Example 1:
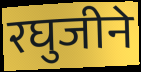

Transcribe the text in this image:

रघुजीने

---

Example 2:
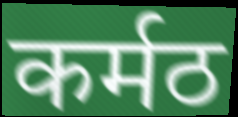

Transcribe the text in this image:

कर्मठ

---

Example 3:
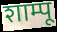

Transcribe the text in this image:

शाम्पू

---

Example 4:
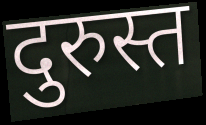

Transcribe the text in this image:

दुरुस्त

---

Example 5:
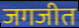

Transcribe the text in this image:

जगजीत